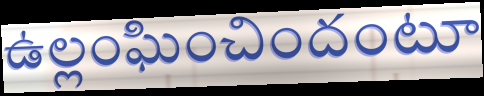
ఉల్లంఘించిందంటూ